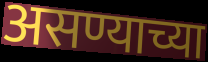
असण्याच्या